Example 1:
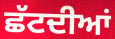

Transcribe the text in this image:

ਛੱਟਦੀਆਂ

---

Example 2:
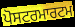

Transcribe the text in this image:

ਪੋਸਟਰਮਾਰਟਮ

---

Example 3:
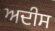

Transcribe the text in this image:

ਅਦੀਸ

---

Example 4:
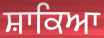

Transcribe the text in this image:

ਸ਼ਾਕਿਆ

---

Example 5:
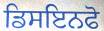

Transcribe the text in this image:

ਡਿਸਇਨਫੋ